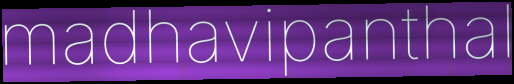
madhavipanthal